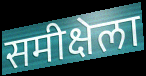
समीक्षेला